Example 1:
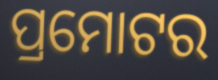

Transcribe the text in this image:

ପ୍ରମୋଟର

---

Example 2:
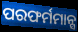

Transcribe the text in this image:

ପରଫର୍ମମାନ୍ସ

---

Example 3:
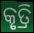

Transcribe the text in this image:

କୃତ୍ରି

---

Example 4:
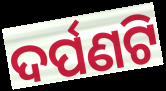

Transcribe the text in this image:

ଦର୍ପଣଟି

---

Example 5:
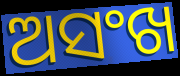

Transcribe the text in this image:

ଅସଂଖ